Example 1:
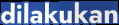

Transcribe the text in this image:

dilakukan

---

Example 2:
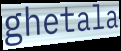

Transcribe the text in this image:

ghetala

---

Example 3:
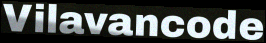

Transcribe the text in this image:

Vilavancode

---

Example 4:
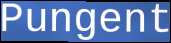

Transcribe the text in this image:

Pungent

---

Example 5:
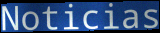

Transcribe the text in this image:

Noticias